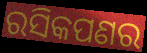
ରସିକପଣର